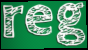
reg